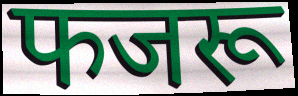
फजरू